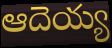
ఆదెయ్య